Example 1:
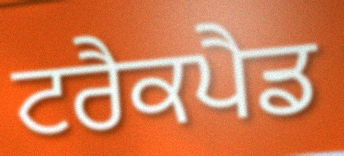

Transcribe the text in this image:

ਟਰੈਕਪੈਡ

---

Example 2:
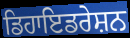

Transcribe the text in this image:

ਡਿਹਾਇਡਰੇਸ਼ਨ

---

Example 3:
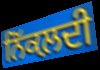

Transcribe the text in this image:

ਨਿੱਕਲ਼ਦੀ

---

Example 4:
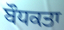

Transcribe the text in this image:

ਬੌਧਕਤਾ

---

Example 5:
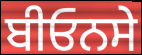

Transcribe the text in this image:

ਬੀਓਨਸੇ